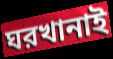
ঘরখানাই